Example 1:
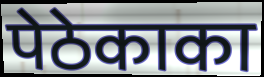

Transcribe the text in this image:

पेठेकाका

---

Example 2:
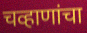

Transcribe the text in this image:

चव्हाणांचा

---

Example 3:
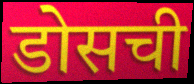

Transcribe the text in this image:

डोसची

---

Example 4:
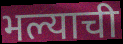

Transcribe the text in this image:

भल्याची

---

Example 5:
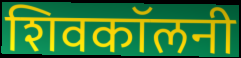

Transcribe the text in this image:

शिवकॉलनी